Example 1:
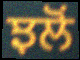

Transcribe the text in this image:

ਝਲੋਂ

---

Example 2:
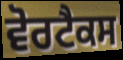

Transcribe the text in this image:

ਵੋਰਟੈਕਸ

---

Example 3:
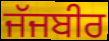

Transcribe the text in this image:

ਜੱਜਬੀਰ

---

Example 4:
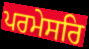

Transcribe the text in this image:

ਪਰਮੇਸਰਿ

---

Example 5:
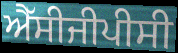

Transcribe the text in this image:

ਐੱਸੀਜੀਪੀਸੀ